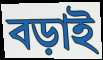
বড়াই